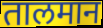
तालमान